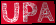
UPA